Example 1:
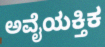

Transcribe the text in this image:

ಅವೈಯಕ್ತಿಕ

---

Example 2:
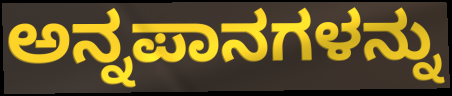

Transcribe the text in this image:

ಅನ್ನಪಾನಗಳನ್ನು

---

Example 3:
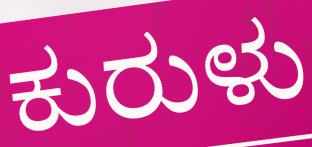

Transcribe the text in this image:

ಕುರುಳು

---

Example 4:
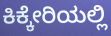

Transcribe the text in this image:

ಕಿಕ್ಕೇರಿಯಲ್ಲಿ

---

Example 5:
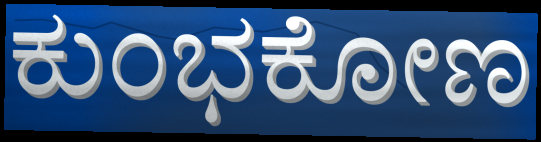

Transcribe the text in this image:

ಕುಂಭಕೋಣ